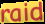
raid